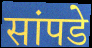
सांपडे